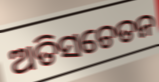
ଅତିସଚେତନ